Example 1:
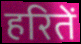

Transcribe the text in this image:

हरितें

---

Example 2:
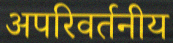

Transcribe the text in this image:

अपरिवर्तनीय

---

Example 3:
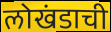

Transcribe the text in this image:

लोखंडाची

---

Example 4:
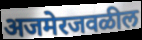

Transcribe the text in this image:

अजमेरजवळील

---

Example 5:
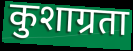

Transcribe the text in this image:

कुशाग्रता